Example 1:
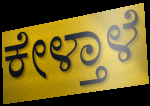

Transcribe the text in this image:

ಕೇಳ್ತಾಳೆ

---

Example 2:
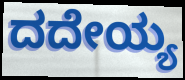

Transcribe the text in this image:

ದದೇಯ್ಯ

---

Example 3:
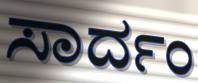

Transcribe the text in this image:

ಸಾರ್ದಂ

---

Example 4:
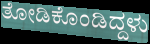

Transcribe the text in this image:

ತೋಡಿಕೊಂಡಿದ್ದಳು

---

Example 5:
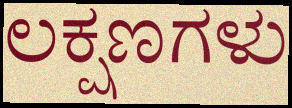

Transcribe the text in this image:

ಲಕ್ಷಣಗಳು